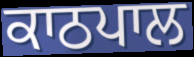
ਕਾਠਪਾਲ